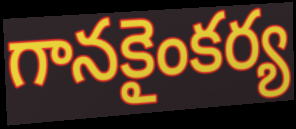
గానకైంకర్య